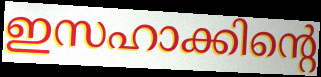
ഇസഹാക്കിന്റെ